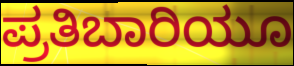
ಪ್ರತಿಬಾರಿಯೂ